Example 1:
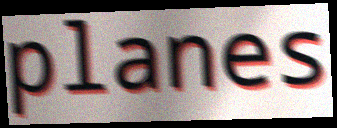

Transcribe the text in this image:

planes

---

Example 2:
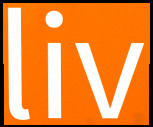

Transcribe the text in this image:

liv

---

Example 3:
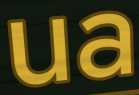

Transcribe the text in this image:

ua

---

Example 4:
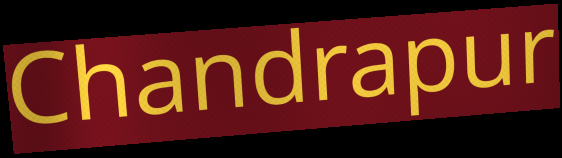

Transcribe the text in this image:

Chandrapur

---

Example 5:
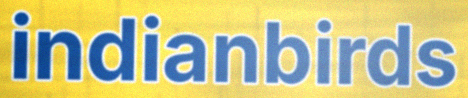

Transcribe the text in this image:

indianbirds